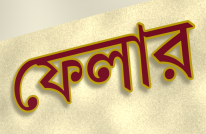
ফেলার